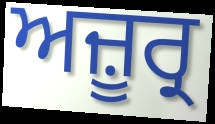
ਅਜ਼ੂਰ੍ਰ